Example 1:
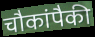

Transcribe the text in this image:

चौकांपैकी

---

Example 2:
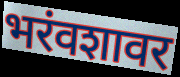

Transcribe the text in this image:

भरंवशावर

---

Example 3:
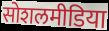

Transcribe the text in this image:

सोशलमीडिया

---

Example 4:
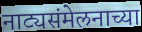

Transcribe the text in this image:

नाट्यसंमेलनाच्या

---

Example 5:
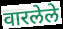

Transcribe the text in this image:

वारलेले